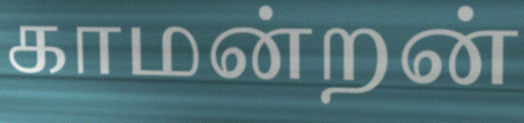
காமன்றன்